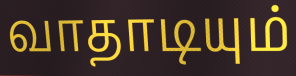
வாதாடியும்